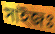
সাইজঃ